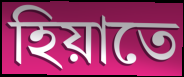
হিয়াতে